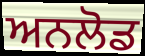
ਅਨਲੋਡ